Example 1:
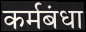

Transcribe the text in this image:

कर्मबंधा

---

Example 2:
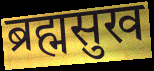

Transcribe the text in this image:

ब्रह्मसुख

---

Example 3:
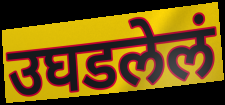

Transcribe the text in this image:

उघडलेलं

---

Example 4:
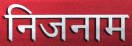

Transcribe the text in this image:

निजनाम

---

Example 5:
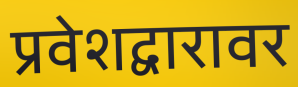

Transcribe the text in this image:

प्रवेशद्वारावर